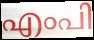
എംപി